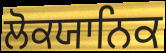
ਲੋਕਯਾਨਿਕ